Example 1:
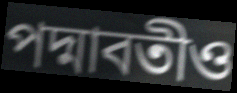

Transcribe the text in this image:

পদ্মাবতীও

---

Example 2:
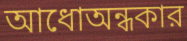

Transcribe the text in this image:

আধোঅন্ধকার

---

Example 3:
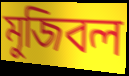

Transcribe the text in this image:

মুজিবল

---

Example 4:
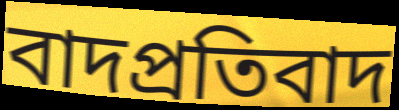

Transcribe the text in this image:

বাদপ্রতিবাদ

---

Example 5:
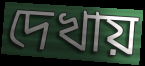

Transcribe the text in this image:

দেখায়